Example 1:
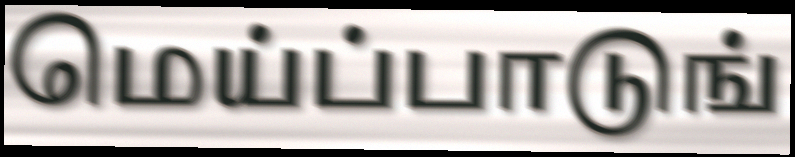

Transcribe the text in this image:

மெய்ப்பாடுங்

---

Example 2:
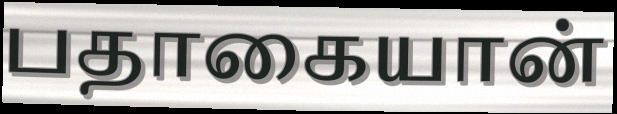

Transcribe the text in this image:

பதாகையான்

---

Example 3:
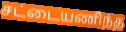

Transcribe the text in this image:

சட்டையணிந்த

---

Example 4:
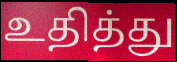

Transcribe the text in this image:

உதித்து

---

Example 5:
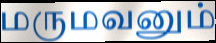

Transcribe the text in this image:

மருமவனும்